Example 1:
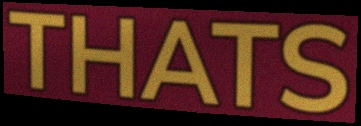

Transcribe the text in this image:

THATS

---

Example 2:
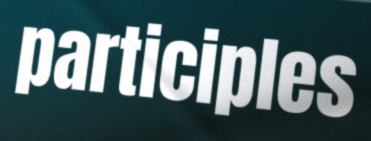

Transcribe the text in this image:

participles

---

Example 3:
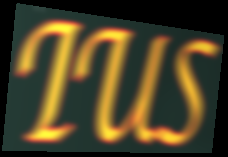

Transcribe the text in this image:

IUS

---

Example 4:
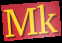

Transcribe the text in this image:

Mk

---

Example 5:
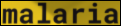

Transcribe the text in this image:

malaria